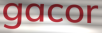
gacor